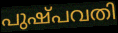
പുഷ്പവതി